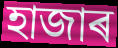
হাজাৰ